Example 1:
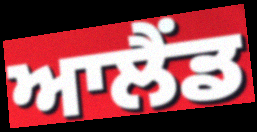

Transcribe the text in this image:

ਆਲੈਂਡ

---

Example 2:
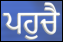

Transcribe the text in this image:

ਪਹੁਚੈ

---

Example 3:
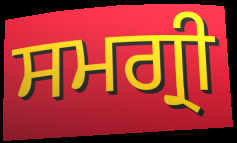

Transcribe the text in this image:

ਸਮਗ੍ਰੀ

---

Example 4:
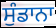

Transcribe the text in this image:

ਸੁੰਡਾਨਾ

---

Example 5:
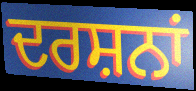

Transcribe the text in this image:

ਦਰਸ਼ਨਾਂ